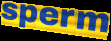
sperm